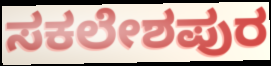
ಸಕಲೇಶಪುರ